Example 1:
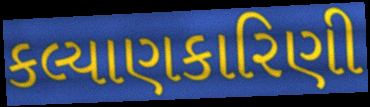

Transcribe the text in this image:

કલ્યાણકારિણી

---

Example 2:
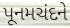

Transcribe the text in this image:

પૂનમચંદને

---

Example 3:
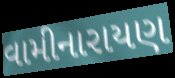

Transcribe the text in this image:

વામીનારાયણ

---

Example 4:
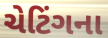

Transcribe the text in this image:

ચેટિંગના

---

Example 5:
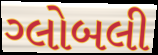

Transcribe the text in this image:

ગ્લોબલી